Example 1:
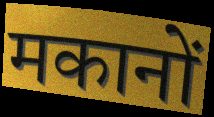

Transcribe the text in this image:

मकानों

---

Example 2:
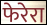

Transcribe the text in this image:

फेरेरा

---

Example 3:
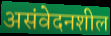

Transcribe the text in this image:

असंवेदनशील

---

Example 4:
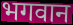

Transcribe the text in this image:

भगवान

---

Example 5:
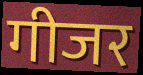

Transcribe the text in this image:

गीजर